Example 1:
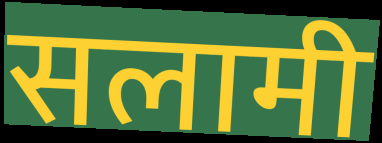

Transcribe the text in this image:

सलामी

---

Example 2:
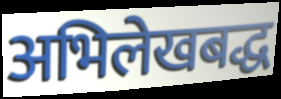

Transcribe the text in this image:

अभिलेखबद्ध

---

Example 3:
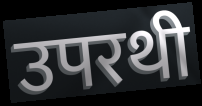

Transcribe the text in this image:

उपरथी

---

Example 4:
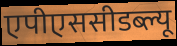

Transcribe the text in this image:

एपीएससीडब्ल्यू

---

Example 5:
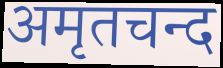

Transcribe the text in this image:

अमृतचन्द